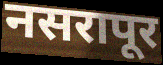
नसरापूर